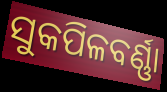
ସୁକପିଳବର୍ଣ୍ଣା